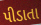
પીડાતા